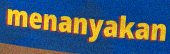
menanyakan